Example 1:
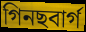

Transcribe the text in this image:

গিনছবাৰ্গ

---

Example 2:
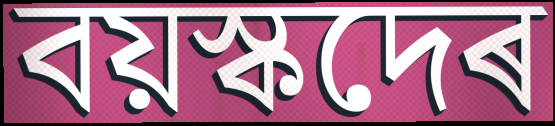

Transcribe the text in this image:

বয়স্কদেৰ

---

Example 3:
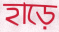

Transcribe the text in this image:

হাড়ে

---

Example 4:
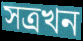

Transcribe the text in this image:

সত্ৰখন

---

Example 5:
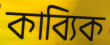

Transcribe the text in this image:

কাব্যিক